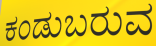
ಕಂಡುಬರುವ